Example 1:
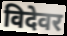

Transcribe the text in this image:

विदेवर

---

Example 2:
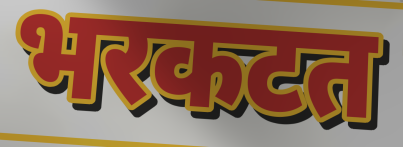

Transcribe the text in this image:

भरकटत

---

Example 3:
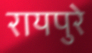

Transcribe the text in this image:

रायपुरे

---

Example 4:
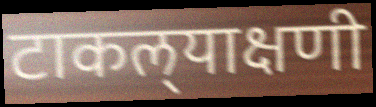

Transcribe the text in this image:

टाकल्याक्षणी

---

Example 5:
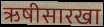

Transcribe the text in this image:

ऋषीसारखा